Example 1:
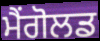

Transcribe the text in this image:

ਮੈਂਗੋਲਡ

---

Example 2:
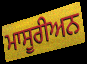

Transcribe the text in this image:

ਮਾਸੂਰੀਅਨ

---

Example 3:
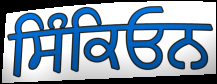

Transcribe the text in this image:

ਸਿੰਕਿਓਨ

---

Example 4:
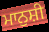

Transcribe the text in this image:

ਮਾਨੁਸ਼ੀ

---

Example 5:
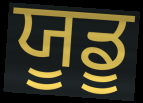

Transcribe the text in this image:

ਯੂਡੂ